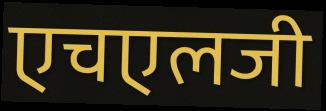
एचएलजी